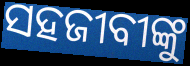
ସହଜୀବୀଙ୍କୁ